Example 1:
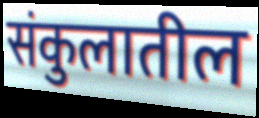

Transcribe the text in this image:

संकुलातील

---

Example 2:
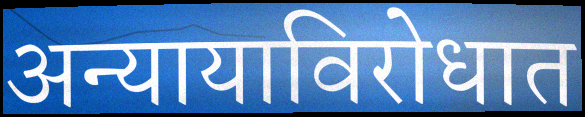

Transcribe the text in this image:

अन्यायाविरोधात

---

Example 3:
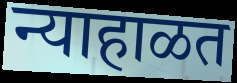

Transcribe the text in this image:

न्याहाळत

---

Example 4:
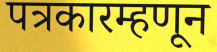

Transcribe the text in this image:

पत्रकारम्हणून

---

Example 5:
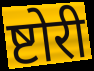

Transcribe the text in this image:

ष्टोरी